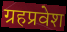
ग्रहप्रवेश